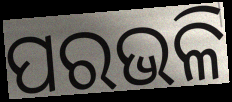
ପରଭଳି